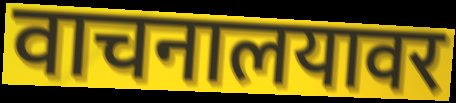
वाचनालयावर